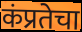
कंप्रतेचा